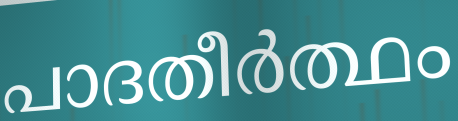
പാദതീർത്ഥം